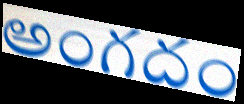
అంగదం